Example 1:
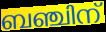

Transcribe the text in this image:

ബഞ്ചിന്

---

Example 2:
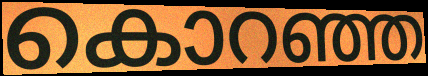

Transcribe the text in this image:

കൊറഞ്ഞ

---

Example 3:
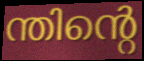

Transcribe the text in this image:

ന്തിന്റെ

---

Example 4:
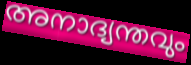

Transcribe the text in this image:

അനാദ്യന്തവും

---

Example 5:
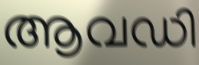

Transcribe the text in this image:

ആവഡി